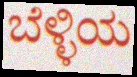
ಬೆಳ್ಳಿಯ